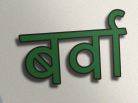
बर्वा